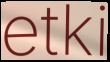
etki